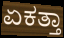
ಏಕತ್ತಾ